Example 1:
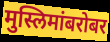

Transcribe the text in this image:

मुस्लिमांबरोबर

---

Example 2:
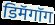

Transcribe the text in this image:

डिमॅगॉग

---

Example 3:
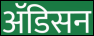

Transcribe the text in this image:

ॲडिसन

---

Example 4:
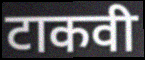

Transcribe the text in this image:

टाकवी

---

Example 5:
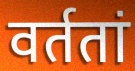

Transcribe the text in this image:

वर्ततां